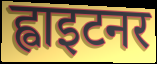
ह्वाइटनर